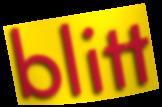
blitt